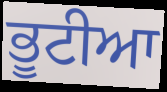
ਭੂਟੀਆ